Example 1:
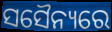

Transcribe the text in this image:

ସସୈନ୍ୟରେ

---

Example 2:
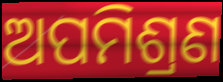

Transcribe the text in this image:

ଅପମିଶ୍ରଣ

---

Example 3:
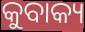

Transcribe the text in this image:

କୁବାକ୍ୟ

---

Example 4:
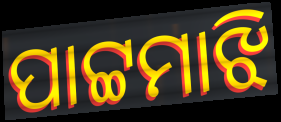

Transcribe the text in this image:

ପାଟ୍ଟମାଝି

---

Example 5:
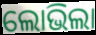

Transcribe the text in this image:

ଲୋଭିଲା